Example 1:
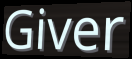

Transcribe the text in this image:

Giver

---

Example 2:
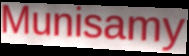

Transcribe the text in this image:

Munisamy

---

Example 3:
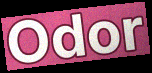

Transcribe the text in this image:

Odor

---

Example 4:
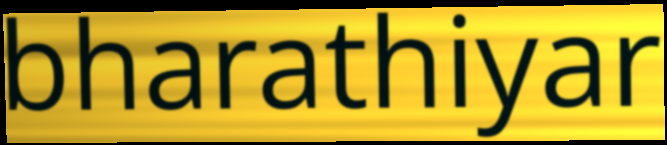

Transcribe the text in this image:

bharathiyar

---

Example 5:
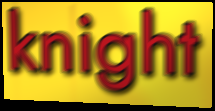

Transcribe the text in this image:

knight